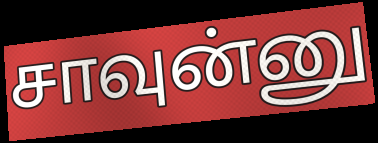
சாவுன்னு